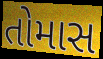
તોમાસ